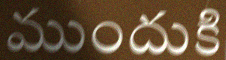
ముందుకి